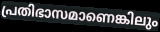
പ്രതിഭാസമാണെങ്കിലും